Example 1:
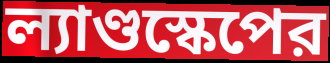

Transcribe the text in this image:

ল্যাণ্ডস্কেপের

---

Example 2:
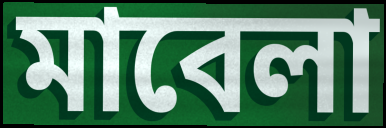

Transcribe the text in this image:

মাবেলা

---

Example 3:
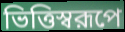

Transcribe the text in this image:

ভিত্তিস্বরূপে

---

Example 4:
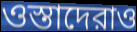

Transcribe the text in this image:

ওস্তাদেরাও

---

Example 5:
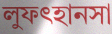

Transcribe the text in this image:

লুফৎহানসা